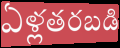
ఏళ్లతరబడి